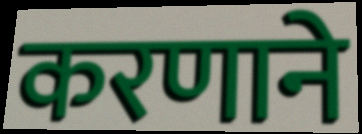
करणाने